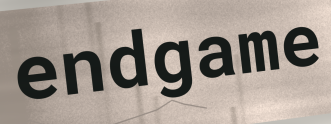
endgame